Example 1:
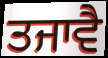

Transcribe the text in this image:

ਤਜਾਵੈ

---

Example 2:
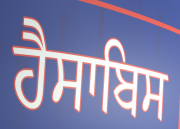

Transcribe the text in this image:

ਹੈਸਾਬਿਸ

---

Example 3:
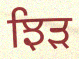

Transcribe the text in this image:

ਝਿੜ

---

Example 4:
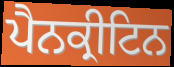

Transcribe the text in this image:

ਪੈਨਕ੍ਰੀਟਿਨ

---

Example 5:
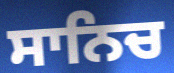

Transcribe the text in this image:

ਸਾਨਿਚ